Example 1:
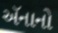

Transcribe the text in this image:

ઍનાનો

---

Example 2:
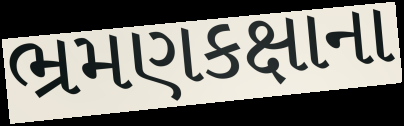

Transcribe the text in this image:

ભ્રમણકક્ષાના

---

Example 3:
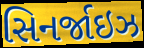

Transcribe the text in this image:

સિનર્જાઇઝ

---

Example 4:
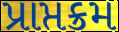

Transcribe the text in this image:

પ્રાપ્તક્રમ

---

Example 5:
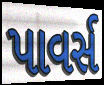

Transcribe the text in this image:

પાવર્સ